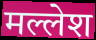
मल्लेश